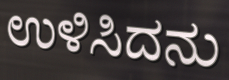
ಉಳಿಸಿದನು